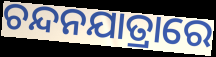
ଚନ୍ଦନଯାତ୍ରାରେ